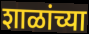
शाळांच्या